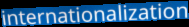
internationalization